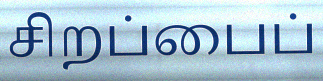
சிறப்பைப்